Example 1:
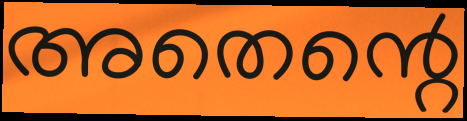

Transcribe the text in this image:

അതെന്റെ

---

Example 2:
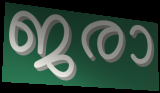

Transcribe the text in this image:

ജരാ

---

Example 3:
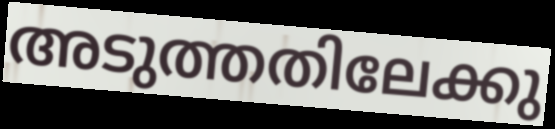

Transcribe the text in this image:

അടുത്തതിലേക്കു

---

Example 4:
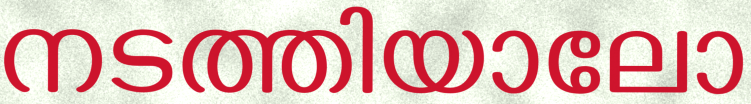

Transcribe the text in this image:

നടത്തിയാലോ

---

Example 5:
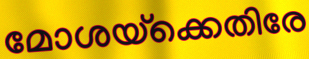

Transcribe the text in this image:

മോശയ്‌ക്കെതിരേ